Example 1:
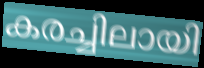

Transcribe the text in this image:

കരച്ചിലായി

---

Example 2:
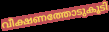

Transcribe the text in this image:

വീക്ഷണത്തോടുകൂടി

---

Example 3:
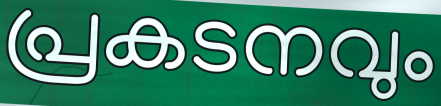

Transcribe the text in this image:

പ്രകടനവും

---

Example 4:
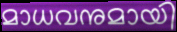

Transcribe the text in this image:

മാധവനുമായി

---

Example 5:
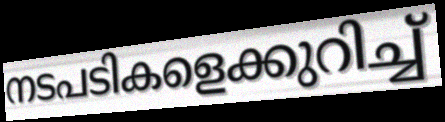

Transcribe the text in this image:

നടപടികളെക്കുറിച്ച്